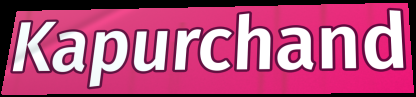
Kapurchand